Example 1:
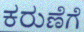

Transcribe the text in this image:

ಕರುಣೆಗೆ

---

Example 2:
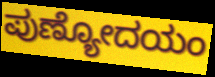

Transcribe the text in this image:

ಪುಣ್ಯೋದಯಂ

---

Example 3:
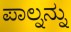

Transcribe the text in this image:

ಪಾಲ್ನನ್ನು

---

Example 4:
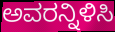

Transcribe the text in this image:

ಅವರನ್ನಿಳಿಸಿ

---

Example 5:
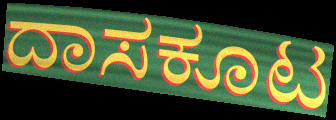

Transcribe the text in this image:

ದಾಸಕೂಟ